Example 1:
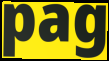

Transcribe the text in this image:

pag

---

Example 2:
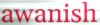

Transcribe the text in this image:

awanish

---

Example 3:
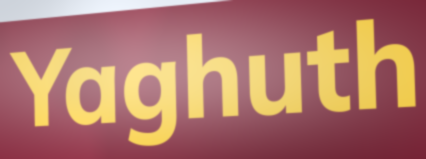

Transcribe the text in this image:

Yaghuth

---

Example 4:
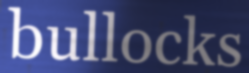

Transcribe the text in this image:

bullocks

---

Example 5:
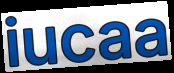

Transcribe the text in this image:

iucaa